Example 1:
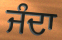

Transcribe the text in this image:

ਜੰਦਾ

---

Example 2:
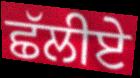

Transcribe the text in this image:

ਛੱਲੀਏ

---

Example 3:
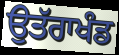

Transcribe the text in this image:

ਉਤੱਰਾਖੰਡ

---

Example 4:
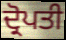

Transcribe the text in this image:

ਦ੍ਰੋਪਤੀ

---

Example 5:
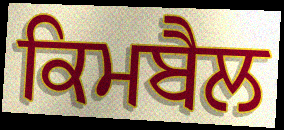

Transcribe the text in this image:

ਕਿਮਬੈਲ